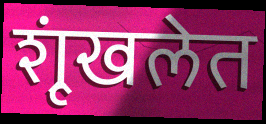
श्रृंखलेत